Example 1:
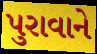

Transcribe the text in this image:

પુરાવાને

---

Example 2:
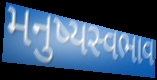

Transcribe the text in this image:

મનુષ્યસ્વભાવ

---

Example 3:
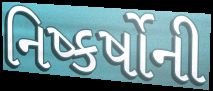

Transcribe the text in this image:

નિષ્કર્ષોની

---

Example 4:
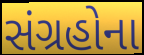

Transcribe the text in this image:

સંગ્રહોના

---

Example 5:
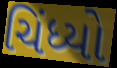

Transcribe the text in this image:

ચિંધ્યો